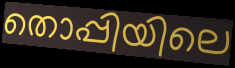
തൊപ്പിയിലെ